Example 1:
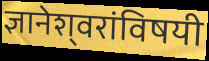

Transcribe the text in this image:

ज्ञानेश्वरांविषयी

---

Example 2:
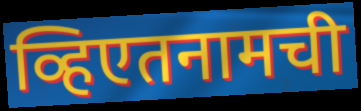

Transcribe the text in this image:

व्हिएतनामची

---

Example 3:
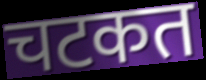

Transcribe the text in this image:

चटकत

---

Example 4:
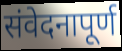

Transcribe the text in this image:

संवेदनापूर्ण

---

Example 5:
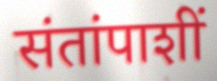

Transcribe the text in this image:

संतांपाशीं